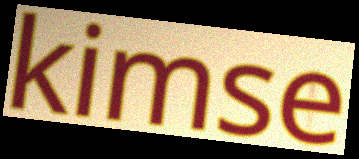
kimse